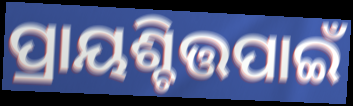
ପ୍ରାୟଶ୍ଚିତ୍ତପାଇଁ